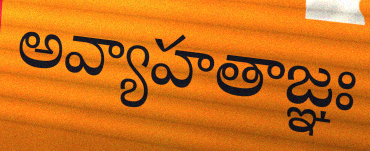
అవ్యాహతాజ్ఞః